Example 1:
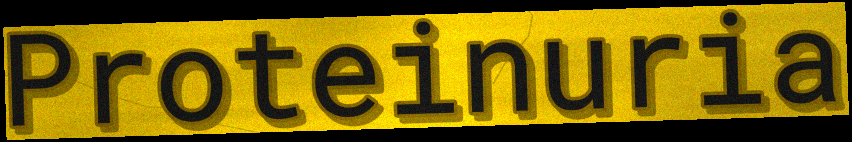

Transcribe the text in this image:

Proteinuria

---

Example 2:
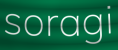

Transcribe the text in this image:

soragi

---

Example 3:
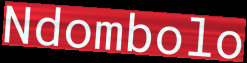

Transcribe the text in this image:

Ndombolo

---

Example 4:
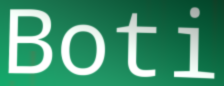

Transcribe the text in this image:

Boti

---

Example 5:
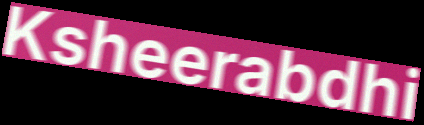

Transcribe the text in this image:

Ksheerabdhi